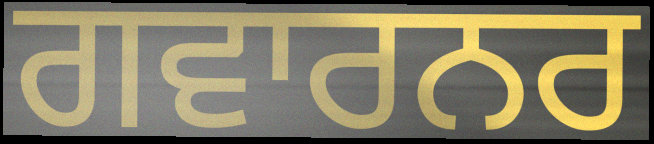
ਗਵਾਰਨਰ